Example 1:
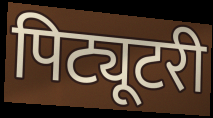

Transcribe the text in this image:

पिट्यूटरी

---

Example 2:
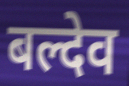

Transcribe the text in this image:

बल्देव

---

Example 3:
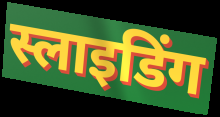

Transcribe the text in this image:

स्लाइडिंग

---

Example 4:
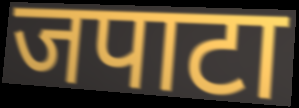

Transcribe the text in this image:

जपाटा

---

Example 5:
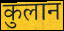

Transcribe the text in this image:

कुलान